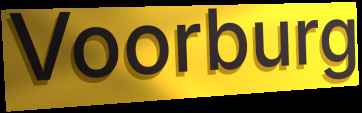
Voorburg